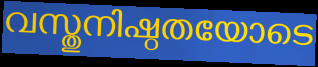
വസ്തുനിഷ്ഠതയോടെ